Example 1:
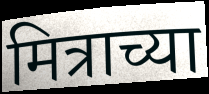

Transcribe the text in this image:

मित्राच्या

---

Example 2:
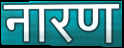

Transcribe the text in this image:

नारण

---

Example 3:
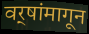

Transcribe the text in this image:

वर्षांमागून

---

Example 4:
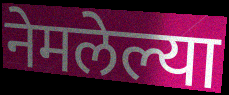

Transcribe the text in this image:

नेमलेल्या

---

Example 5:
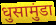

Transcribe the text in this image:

धुसामुंडा